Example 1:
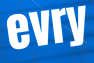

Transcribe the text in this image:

evry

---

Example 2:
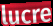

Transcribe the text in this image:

lucre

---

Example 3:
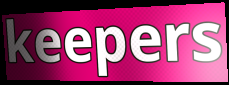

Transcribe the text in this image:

keepers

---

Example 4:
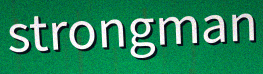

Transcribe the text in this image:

strongman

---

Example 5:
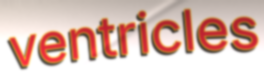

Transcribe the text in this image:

ventricles